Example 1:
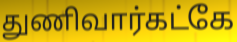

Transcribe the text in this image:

துணிவார்கட்கே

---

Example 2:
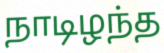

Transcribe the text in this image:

நாடிழந்த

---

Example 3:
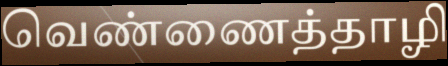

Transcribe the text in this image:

வெண்ணைத்தாழி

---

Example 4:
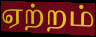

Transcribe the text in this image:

ஏற்றம்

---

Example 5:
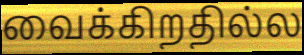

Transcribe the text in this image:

வைக்கிறதில்ல